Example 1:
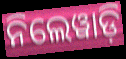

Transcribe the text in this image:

ନିଲେୱାଡ଼ି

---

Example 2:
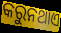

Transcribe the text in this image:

କରୁନଥାଏ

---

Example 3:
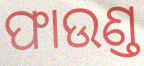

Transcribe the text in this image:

ଫାଉଣ୍ଡ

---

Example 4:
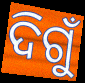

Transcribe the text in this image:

ଦିଗୁଁ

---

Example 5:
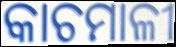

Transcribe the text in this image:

କାଚମାଳୀ